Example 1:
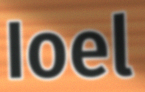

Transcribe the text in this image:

Ioel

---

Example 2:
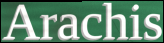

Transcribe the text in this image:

Arachis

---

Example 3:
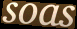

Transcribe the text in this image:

soas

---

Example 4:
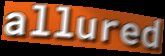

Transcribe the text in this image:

allured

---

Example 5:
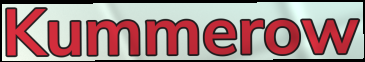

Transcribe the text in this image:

Kummerow